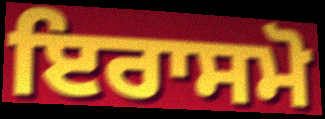
ਇਰਾਸਮੋ